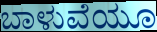
ಬಾಳುವೆಯೂ